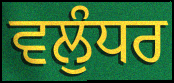
ਵਲੁੰਧਰ